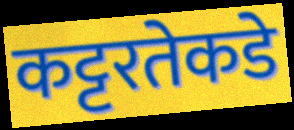
कट्टरतेकडे